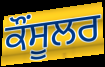
ਕੌਂਸੂਲਰ